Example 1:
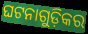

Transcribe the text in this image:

ଘଟନାଗୁଡ଼ିକର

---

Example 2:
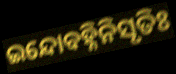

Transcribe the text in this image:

ଇନ୍ଦୋବହ୍ନିନିସୃତିଃ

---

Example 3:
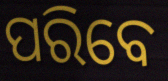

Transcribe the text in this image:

ପରିବେ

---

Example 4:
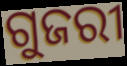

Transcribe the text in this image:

ଗୁଜରୀ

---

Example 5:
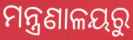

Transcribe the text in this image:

ମନ୍ତ୍ରଣାଳୟରୁ